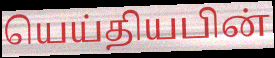
யெய்தியபின்